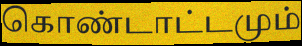
கொண்டாட்டமும்